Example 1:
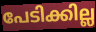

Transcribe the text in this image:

പേടിക്കില്ല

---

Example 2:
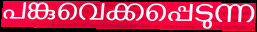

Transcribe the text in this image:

പങ്കുവെക്കപ്പെടുന്ന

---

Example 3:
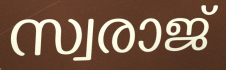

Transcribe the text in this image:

സ്വരാജ്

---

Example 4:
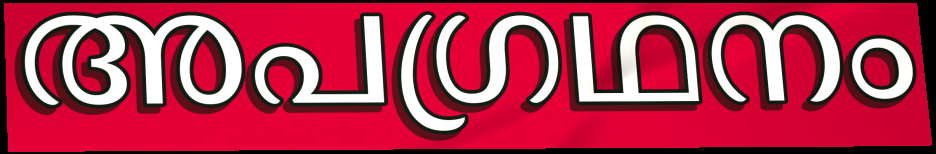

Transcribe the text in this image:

അപഗ്രഥനം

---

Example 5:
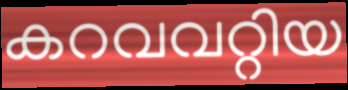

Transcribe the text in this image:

കറവവറ്റിയ